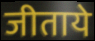
जीताये